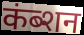
कंब्शन